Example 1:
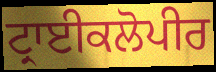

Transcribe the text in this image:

ਟ੍ਰਾਈਕਲੋਪੀਰ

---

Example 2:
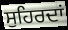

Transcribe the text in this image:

ਸੁਹਿਰਦਾਂ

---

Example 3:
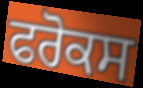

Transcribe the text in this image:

ਫਰੋਕਸ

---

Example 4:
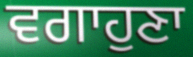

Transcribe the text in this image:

ਵਗਾਹੁਣਾ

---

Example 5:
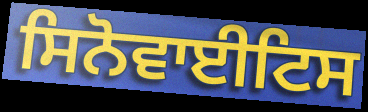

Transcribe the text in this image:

ਸਿਨੋਵਾਈਟਿਸ